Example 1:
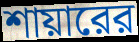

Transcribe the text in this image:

শায়ারের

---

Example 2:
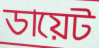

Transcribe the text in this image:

ডায়েট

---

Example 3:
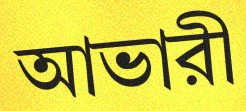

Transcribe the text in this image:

আভারী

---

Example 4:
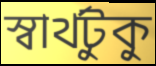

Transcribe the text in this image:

স্বার্থটুকু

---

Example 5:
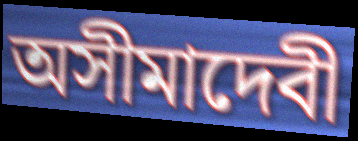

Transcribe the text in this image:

অসীমাদেবী